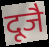
दूजै